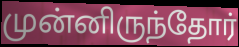
முன்னிருந்தோர்